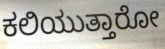
ಕಲಿಯುತ್ತಾರೋ